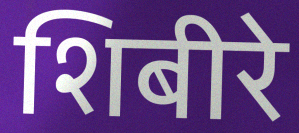
शिबीरे